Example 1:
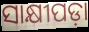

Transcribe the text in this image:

ସାକ୍ଷୀପଡ଼ା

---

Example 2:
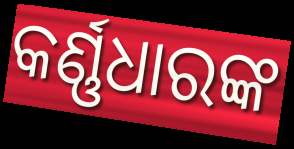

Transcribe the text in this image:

କର୍ଣ୍ଣଧାରଙ୍କ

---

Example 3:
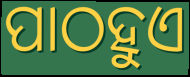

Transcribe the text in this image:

ପାଠହୁଏ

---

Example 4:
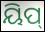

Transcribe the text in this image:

ୟିପ୍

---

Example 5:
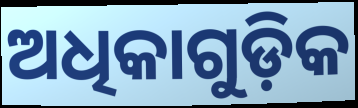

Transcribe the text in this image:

ଅଧିକାଗୁଡ଼ିକ